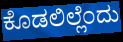
ಕೊಡಲಿಲ್ಲೆಂದು